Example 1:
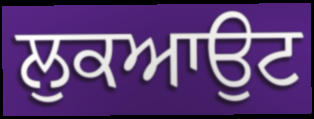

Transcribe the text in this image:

ਲੁਕਆਉਟ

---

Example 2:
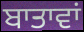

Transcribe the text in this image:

ਬਾਤਾਵਾਂ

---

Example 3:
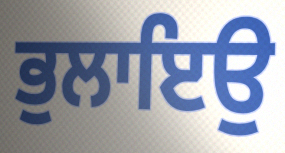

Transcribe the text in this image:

ਭੁਲਾਇਉ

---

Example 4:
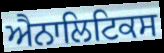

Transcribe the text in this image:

ਐਨਾਲਿਟਿਕਸ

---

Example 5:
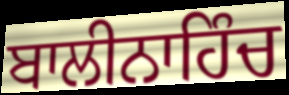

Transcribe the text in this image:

ਬਾਲੀਨਾਹਿੰਚ